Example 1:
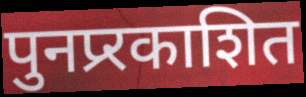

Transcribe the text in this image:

पुनप्र्रकाशित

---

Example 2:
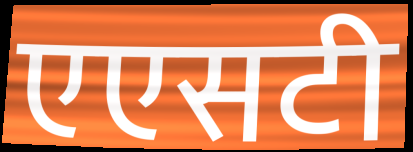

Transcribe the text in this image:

एएसटी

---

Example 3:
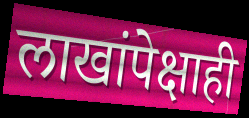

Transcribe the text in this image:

लाखांपेक्षाही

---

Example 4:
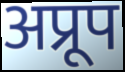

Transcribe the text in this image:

अप्रूप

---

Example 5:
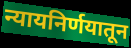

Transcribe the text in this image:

न्यायनिर्णयातून